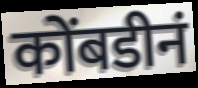
कोंबडीनं